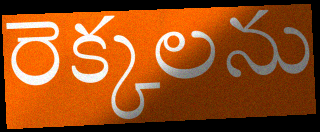
రెక్కలను